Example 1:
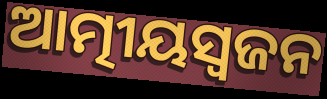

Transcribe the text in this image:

ଆତ୍ମୀୟସ୍ୱଜନ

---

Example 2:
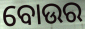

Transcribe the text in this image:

ବୋଉର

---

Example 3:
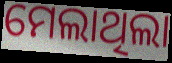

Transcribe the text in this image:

ମେଲାଥିଲା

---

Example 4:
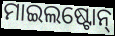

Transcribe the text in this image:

ମାଇଲଷ୍ଟୋନ୍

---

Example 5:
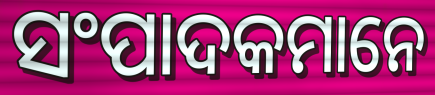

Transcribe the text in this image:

ସଂପାଦକମାନେ